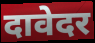
दावेदर